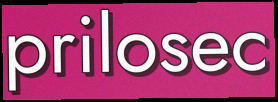
prilosec